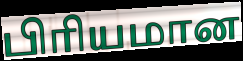
பிரியமான